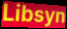
Libsyn